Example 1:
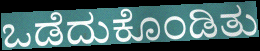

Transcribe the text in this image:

ಒಡೆದುಕೊಂಡಿತು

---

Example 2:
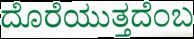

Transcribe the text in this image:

ದೊರೆಯುತ್ತದೆಂಬ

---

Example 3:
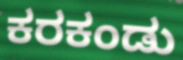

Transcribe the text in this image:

ಕರಕಂಡು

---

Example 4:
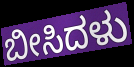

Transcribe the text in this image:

ಬೀಸಿದಳು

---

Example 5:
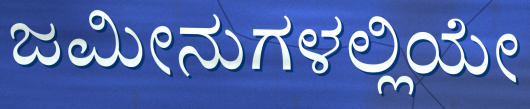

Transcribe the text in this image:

ಜಮೀನುಗಳಲ್ಲಿಯೇ